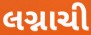
લગ્નાચી